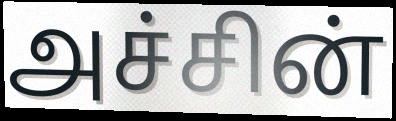
அச்சின்